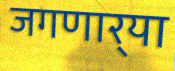
जगणार्‍या